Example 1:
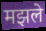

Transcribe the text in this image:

मझले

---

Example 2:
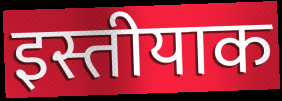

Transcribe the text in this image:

इस्तीयाक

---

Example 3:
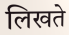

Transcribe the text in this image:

लिखते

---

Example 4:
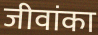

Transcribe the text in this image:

जीवांका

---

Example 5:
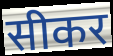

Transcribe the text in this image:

सीकर